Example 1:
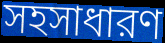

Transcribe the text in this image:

সহসাধারণ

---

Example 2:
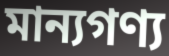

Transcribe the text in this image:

মান্যগণ্য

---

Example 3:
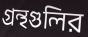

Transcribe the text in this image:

গ্রন্থগুলির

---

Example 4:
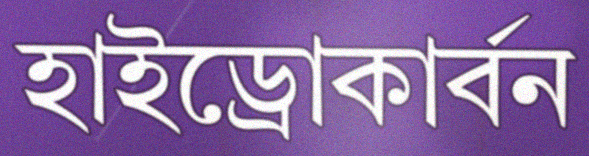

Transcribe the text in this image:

হাইড্রোকার্বন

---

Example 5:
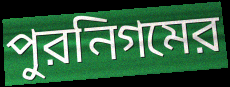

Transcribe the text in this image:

পুরনিগমের